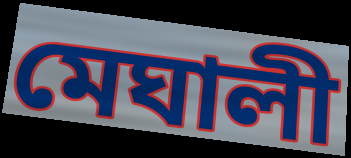
মেঘালী